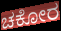
ಚಕೋರ